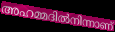
അഹമ്മദിൽനിന്നാണ്